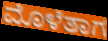
ಮೊಳೆತಾಗ